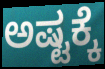
ಅಷ್ಟಕ್ಕೆ